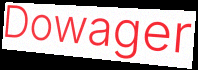
Dowager